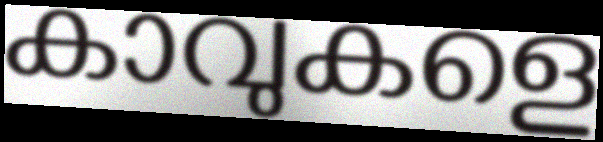
കാവുകളെ